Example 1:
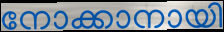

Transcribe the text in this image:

നോക്കാനായി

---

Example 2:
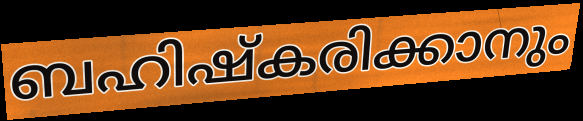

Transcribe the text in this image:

ബഹിഷ്കരിക്കാനും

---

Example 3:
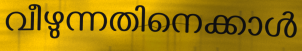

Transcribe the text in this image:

വീഴുന്നതിനെക്കാൾ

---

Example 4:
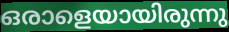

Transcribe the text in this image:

ഒരാളെയായിരുന്നു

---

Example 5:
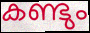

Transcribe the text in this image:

കണ്ടും